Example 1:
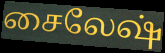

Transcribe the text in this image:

சைலேஷ்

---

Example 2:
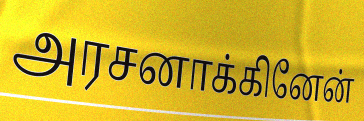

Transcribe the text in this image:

அரசனாக்கினேன்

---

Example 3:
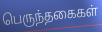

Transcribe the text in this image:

பெருந்தகைகள்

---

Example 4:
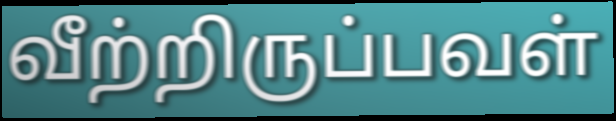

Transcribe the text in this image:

வீற்றிருப்பவள்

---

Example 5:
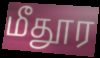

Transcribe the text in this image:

மீதூர